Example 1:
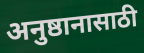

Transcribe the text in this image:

अनुष्ठानासाठी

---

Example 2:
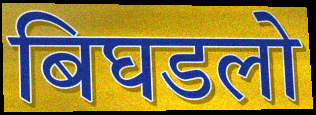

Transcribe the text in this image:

बिघडलो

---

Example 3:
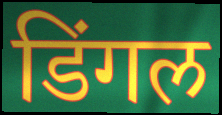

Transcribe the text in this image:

डिंगल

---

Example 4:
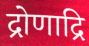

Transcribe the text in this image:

द्रोणाद्रि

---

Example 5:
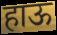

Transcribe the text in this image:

हाऊ